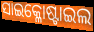
ସାଇକ୍ଳୋଷ୍ଟାଇଲ